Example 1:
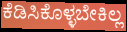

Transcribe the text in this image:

ಕೆಡಿಸಿಕೊಳ್ಳಬೇಕಿಲ್ಲ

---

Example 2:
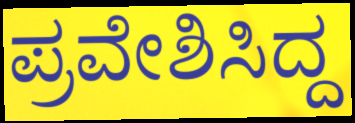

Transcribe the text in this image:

ಪ್ರವೇಶಿಸಿದ್ದ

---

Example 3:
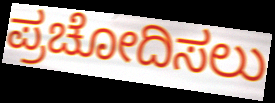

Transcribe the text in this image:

ಪ್ರಚೋದಿಸಲು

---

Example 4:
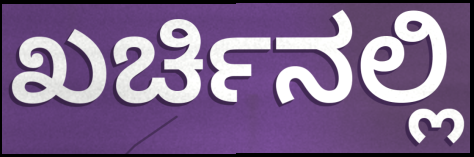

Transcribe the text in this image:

ಖರ್ಚಿನಲ್ಲಿ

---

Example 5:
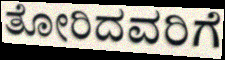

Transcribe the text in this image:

ತೋರಿದವರಿಗೆ